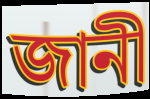
জানী